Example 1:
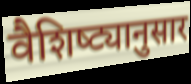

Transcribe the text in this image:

वैशिष्ट्यानुसार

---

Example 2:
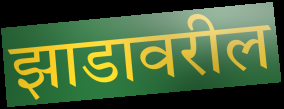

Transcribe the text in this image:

झाडावरील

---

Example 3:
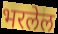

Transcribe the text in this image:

भरलेल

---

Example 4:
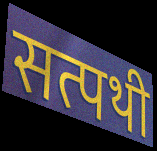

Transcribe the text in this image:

सत्पथी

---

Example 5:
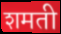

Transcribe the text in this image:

शमती